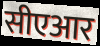
सीएआर